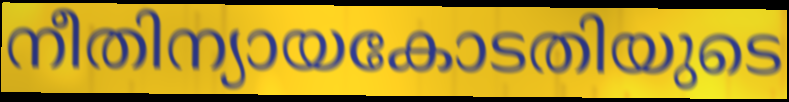
നീതിന്യായകോടതിയുടെ